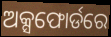
ଅକ୍ସଫୋର୍ଡରେ